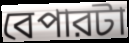
বেপারটা